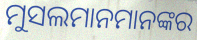
ମୁସଲମାନମାନଙ୍କର